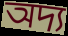
অদ্য